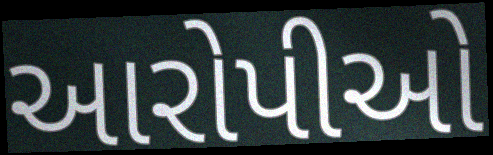
આરોપીઓ